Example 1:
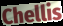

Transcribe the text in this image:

Chellis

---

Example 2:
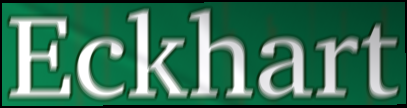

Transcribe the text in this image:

Eckhart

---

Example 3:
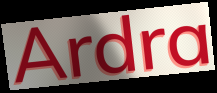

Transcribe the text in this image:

Ardra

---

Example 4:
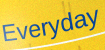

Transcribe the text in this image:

Everyday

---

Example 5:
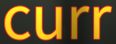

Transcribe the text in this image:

curr